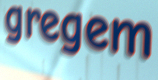
gregem